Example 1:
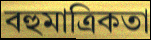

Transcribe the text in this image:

বহুমাত্রিকতা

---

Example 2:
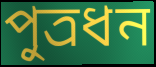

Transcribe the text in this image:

পুত্রধন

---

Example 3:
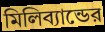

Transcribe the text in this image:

মিলিব্যান্ডের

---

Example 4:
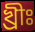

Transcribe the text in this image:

খ্রীঃ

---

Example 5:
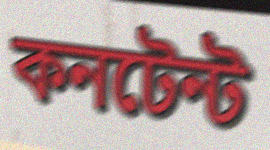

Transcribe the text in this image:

কনটেন্ট